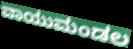
ವಾಯುಮಂಡಲ